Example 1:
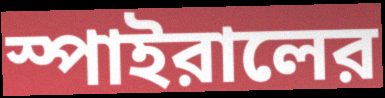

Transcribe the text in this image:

স্পাইরালের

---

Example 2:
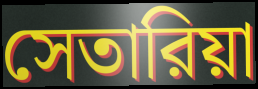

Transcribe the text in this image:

সেতারিয়া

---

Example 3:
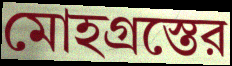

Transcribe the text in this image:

মোহগ্রস্তের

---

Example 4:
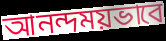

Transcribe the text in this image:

আনন্দময়ভাবে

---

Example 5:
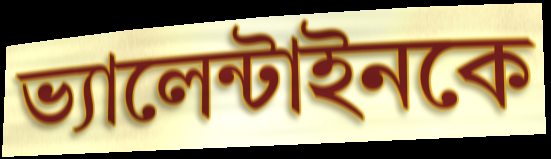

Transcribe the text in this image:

ভ্যালেন্টাইনকে